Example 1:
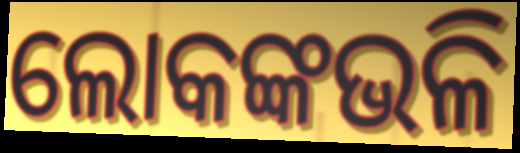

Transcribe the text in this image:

ଲୋକଙ୍କଭଳି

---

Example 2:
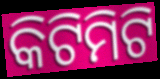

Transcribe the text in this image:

କିଟିମିଟି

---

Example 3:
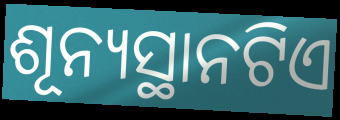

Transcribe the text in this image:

ଶୂନ୍ୟସ୍ଥାନଟିଏ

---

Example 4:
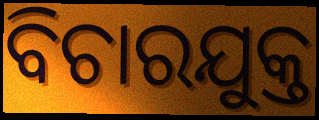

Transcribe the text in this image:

ବିଚାରଯୁକ୍ତ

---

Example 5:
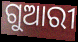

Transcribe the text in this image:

ଗୁଆରୀ